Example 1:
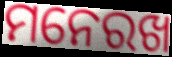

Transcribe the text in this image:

ମନେରଖ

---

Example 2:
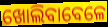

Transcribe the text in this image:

ଖୋଲିବାବେଳେ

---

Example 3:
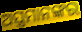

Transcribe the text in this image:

ଅସ୍ତ୍ରମାନଙ୍କର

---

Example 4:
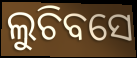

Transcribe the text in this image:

ଲୁଚିବସେ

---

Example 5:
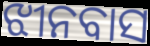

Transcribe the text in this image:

ଝୀନବାସ